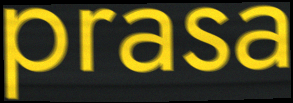
prasa